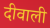
दीवाली